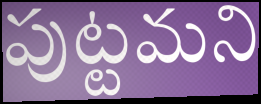
పుట్టమని